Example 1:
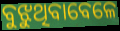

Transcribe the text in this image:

ବୁଝୁଥିବାବେଳେ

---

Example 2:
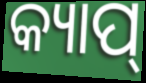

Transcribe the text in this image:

କ୍ୟାପ୍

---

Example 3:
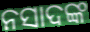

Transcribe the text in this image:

ନସାଦଙ୍କ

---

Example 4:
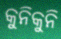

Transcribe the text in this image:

କୁନିକୁନି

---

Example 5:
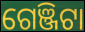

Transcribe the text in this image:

ଗେଞ୍ଜିଟା